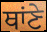
ਥਾਂਣੇ